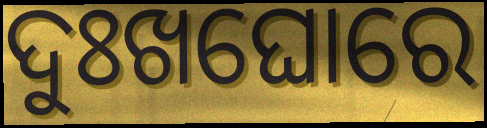
ଦୁଃଖଘୋରେ